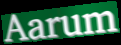
Aarum